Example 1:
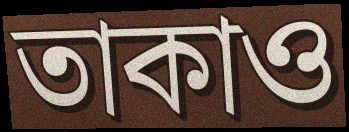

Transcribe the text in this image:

তাকাও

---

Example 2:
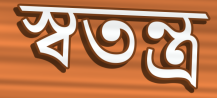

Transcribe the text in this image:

স্বতন্ত্র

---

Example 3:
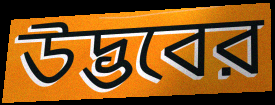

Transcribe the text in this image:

উদ্ভবের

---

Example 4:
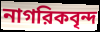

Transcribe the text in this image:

নাগরিকবৃন্দ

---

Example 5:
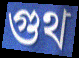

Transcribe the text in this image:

গুথ